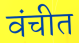
वंचीत